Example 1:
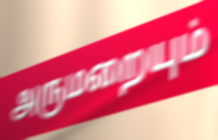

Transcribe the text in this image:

அருமறையும்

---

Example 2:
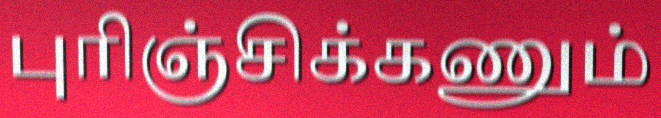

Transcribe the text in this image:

புரிஞ்சிக்கணும்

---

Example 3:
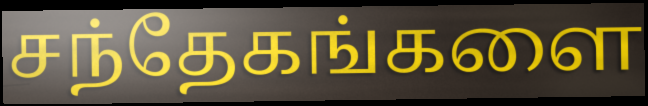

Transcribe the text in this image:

சந்தேகங்களை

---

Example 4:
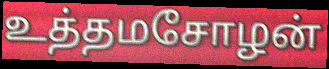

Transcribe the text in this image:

உத்தமசோழன்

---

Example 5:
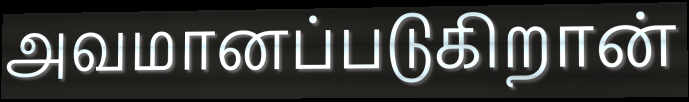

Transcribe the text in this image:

அவமானப்படுகிறான்